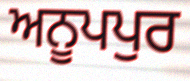
ਅਨੂਪਪੁਰ